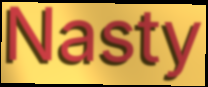
Nasty